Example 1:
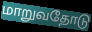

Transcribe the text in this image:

மாறுவதோடு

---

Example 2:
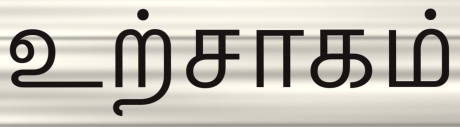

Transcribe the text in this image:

உற்சாகம்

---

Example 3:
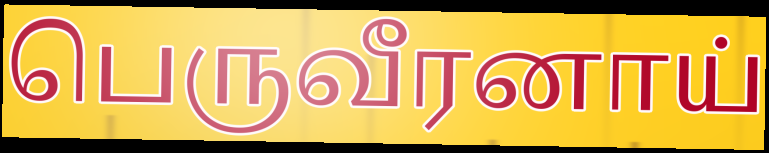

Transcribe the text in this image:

பெருவீரனாய்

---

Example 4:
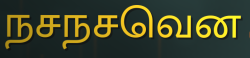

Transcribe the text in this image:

நசநசவென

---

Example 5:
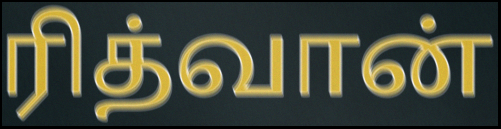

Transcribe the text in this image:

ரித்வான்